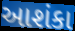
આશંકા